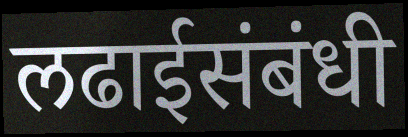
लढाईसंबंधी